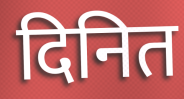
दिनित